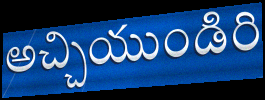
అచ్చియుండిరి